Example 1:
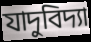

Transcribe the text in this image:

যাদুবিদ্যা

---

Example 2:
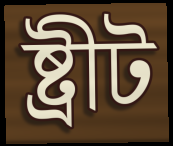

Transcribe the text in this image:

ষ্ট্ৰীট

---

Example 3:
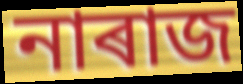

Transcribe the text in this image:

নাৰাজ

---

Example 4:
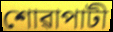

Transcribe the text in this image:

শোৱাপাটী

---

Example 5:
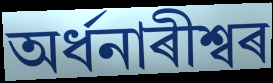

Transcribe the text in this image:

অৰ্ধনাৰীশ্বৰ